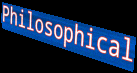
Philosophical